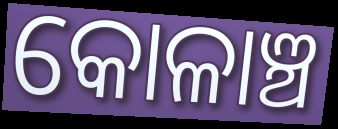
କୋଳାଞ୍ଚ